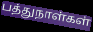
பத்துநாள்கள்